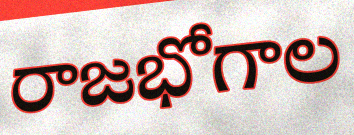
రాజభోగాల